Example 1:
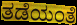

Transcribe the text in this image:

ತಡೆಯಂತೆ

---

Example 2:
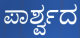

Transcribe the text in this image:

ಪಾರ್ಶ್ವದ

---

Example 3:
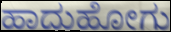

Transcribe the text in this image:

ಹಾದುಹೋಗು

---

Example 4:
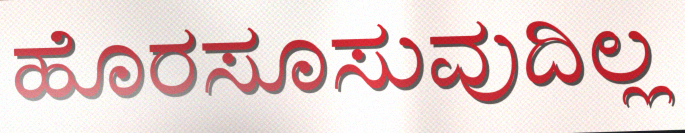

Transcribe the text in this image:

ಹೊರಸೂಸುವುದಿಲ್ಲ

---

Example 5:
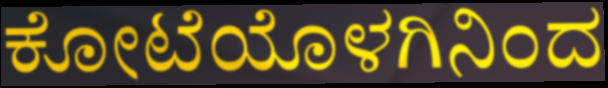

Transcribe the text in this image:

ಕೋಟೆಯೊಳಗಿನಿಂದ